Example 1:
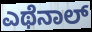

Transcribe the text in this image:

ಎಥೆನಾಲ್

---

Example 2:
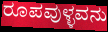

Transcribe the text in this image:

ರೂಪವುಳ್ಳವನು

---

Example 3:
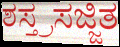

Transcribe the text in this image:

ಶಸ್ತ್ರಸಜ್ಜಿತ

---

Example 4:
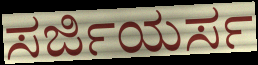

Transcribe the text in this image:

ಸರ್ಜಿಯರ್ಸ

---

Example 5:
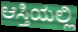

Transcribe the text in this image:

ಆಸ್ತಿಯಲ್ಲಿ